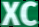
XC